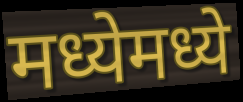
मध्येमध्ये